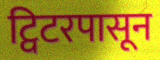
ट्विटरपासून